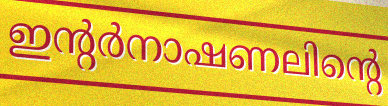
ഇന്റർനാഷണലിന്റെ